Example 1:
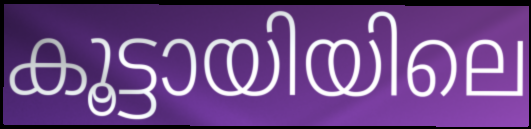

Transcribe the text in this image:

കൂട്ടായിയിലെ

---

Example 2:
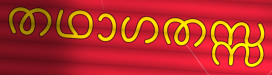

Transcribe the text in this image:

തഥാഗതസ്സ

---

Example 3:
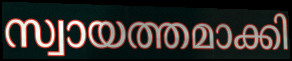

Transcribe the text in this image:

സ്വായത്തമാക്കി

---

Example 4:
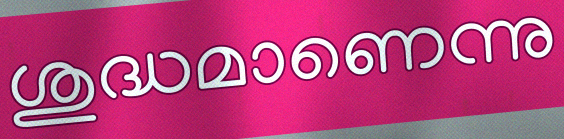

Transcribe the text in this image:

ശുദ്ധമാണെന്നു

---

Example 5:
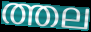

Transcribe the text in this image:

ത്തല